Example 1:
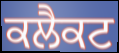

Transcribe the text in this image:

ਕਲੈਕਟ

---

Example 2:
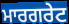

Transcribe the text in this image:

ਮਾਰਗਰੇਟ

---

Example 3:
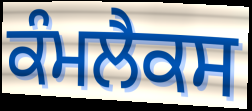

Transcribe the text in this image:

ਕੰਮਲੈਕਸ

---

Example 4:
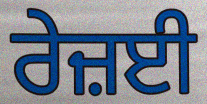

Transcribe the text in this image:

ਰੇਜ਼ਈ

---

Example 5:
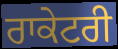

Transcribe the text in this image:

ਰਾਕੇਟਰੀ